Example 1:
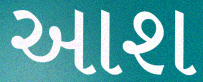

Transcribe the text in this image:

આશ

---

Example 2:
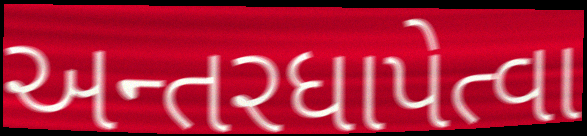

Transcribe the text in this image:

અન્તરધાપેત્વા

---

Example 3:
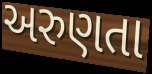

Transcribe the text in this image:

અરુણતા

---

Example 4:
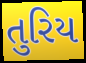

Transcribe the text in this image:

તુરિય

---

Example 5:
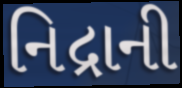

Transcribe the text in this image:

નિદ્રાની